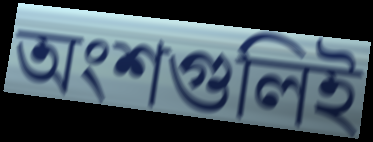
অংশগুলিই